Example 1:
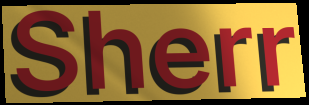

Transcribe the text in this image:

Sherr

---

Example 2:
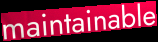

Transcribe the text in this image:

maintainable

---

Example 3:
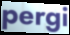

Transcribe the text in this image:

pergi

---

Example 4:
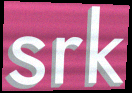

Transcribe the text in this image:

srk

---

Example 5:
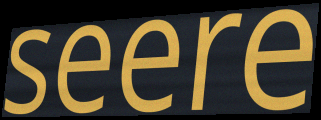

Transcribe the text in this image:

seere